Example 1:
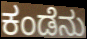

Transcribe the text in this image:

ಕಂಡೆನು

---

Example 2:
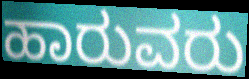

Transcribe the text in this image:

ಹಾರುವರು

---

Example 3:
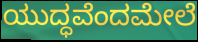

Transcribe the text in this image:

ಯುದ್ಧವೆಂದಮೇಲೆ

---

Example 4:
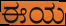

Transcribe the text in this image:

ಈಯ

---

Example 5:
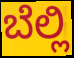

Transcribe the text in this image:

ಬೆಲ್ಲಿ